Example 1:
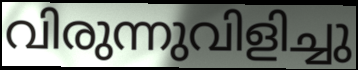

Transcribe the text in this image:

വിരുന്നുവിളിച്ചു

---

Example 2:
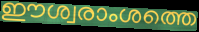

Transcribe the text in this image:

ഈശ്വരാംശത്തെ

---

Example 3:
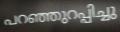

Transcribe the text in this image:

പറഞ്ഞുറപ്പിച്ചു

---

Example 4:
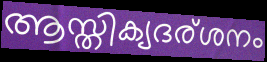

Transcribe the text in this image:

ആസ്തിക്യദര്ശനം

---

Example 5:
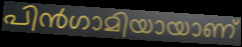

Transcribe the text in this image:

പിൻഗാമിയായാണ്